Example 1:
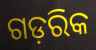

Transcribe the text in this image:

ଗଡ଼ରିକ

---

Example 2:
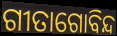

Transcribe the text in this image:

ଗୀତାଗୋବିନ୍ଦ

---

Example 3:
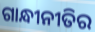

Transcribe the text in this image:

ଗାନ୍ଧୀନୀତିର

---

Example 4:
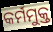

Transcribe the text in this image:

କର୍ମମୁକ୍ତ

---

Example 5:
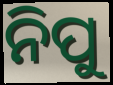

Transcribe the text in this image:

ନିପୁ